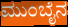
ಮುಂಬೈನ